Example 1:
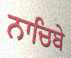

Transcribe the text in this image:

ਨਾਚਿਬੇ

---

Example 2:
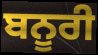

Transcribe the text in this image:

ਬਨੂਰੀ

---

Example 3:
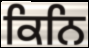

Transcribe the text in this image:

ਕਿਨਿ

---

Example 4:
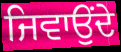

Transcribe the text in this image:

ਜਿਵਾਉਂਦੇ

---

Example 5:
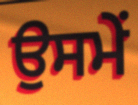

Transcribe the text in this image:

ਉਸਮੇਂ